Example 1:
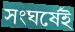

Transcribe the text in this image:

সংঘর্ষেই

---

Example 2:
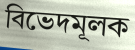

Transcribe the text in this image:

বিভেদমূলক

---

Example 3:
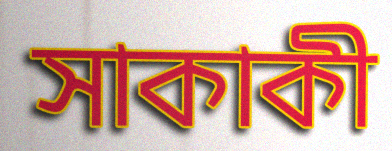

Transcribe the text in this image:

সাকাকী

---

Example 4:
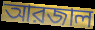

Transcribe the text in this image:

আরজাল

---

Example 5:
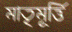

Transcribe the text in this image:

মাতৃমূর্ত্তি